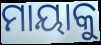
ମାୟାକୁ